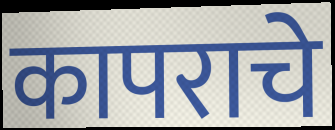
कापराचे